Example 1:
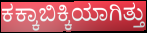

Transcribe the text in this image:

ಕಕ್ಕಾಬಿಕ್ಕಿಯಾಗಿತ್ತು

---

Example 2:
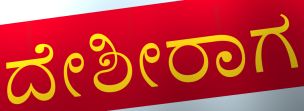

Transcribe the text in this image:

ದೇಶೀರಾಗ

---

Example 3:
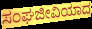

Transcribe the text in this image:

ಸಂಘಜೀವಿಯಾದ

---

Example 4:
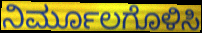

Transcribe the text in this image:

ನಿರ್ಮೂಲಗೊಳಿಸಿ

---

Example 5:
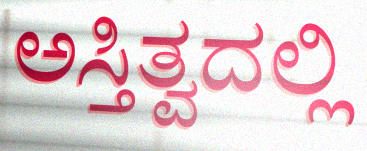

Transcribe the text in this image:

ಅಸ್ತಿತ್ವದಲ್ಲಿ